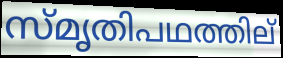
സ്മൃതിപഥത്തില്